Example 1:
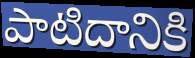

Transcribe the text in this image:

పాటిదానికి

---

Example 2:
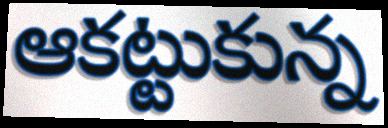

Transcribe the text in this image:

ఆకట్టుకున్న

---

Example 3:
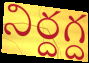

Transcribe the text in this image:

నిర్దగ్ద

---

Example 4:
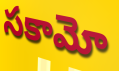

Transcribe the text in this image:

సకామో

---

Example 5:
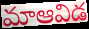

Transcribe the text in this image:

మాఆవిడ